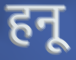
हनू